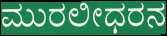
ಮುರಲೀಧರನ